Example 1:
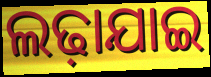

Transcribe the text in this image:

ଲଢ଼ାଯାଇ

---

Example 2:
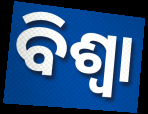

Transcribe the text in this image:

ବିଶ୍ବା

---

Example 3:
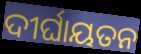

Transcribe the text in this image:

ଦୀର୍ଘାୟତନ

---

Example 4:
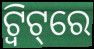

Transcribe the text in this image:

ଟ୍ବିଟ୍‌ରେ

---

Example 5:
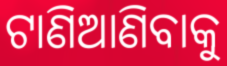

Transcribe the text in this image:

ଟାଣିଆଣିବାକୁ